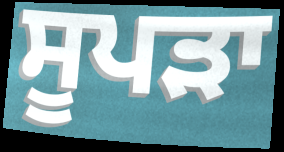
ਸੂਪੜਾ